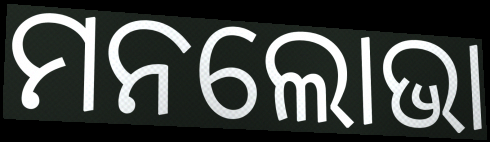
ମନଲୋଭା